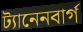
ট্যানেনবার্গ